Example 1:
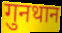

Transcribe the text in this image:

गुनथान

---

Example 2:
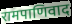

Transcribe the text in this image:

रामपाणिवाद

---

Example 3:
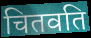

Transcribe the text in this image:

चितवति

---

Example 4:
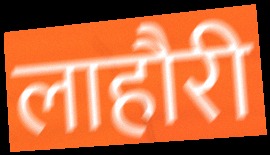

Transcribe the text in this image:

लाहौरी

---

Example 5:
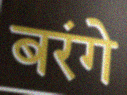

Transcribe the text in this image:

बरंगे